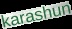
karashun